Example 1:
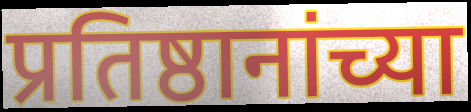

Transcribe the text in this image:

प्रतिष्ठानांच्या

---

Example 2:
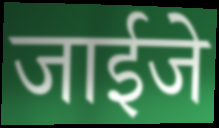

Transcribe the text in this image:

जाईजे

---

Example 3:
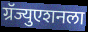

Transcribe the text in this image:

ग्रॅज्युएशनला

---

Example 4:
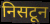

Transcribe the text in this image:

निसटून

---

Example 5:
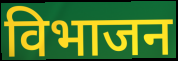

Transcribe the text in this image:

विभाजन